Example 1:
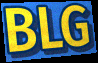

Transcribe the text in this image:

BLG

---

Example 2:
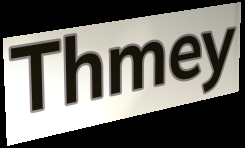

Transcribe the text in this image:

Thmey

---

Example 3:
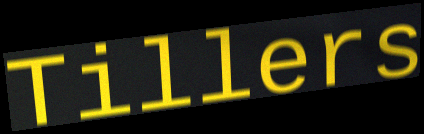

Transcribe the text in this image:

Tillers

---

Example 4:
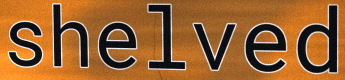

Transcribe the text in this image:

shelved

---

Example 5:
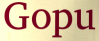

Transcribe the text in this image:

Gopu